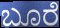
ಬೂರೆ